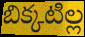
బిక్కటిల్ల